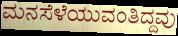
ಮನಸೆಳೆಯುವಂತಿದ್ದವು